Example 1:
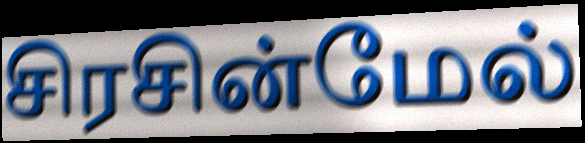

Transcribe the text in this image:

சிரசின்மேல்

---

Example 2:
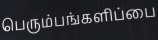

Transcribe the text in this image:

பெரும்பங்களிப்பை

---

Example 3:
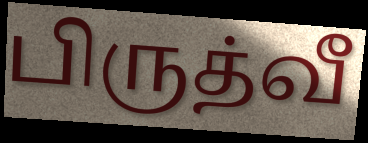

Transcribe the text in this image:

பிருத்வீ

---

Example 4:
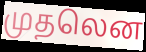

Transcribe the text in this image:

முதலென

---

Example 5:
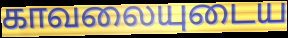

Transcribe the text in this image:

காவலையுடைய